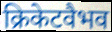
क्रिकेटवैभव